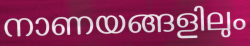
നാണയങ്ങളിലും